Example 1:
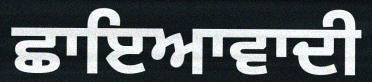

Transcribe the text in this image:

ਛਾਇਆਵਾਦੀ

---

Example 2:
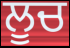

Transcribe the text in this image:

ਲੂਚ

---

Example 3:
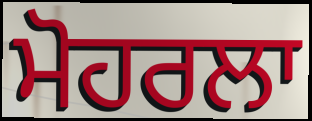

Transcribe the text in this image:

ਮੋਹਰਲਾ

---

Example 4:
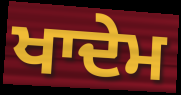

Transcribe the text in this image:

ਖਾਦੇਮ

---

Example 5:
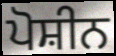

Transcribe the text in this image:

ਪੋਸ਼ੀਨ